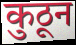
कुठून